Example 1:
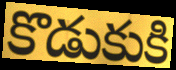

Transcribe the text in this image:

కొడుకుకి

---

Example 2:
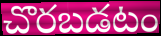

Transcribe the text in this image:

చొరబడటం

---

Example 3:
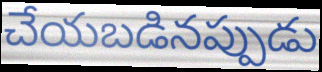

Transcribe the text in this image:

చేయబడినప్పుడు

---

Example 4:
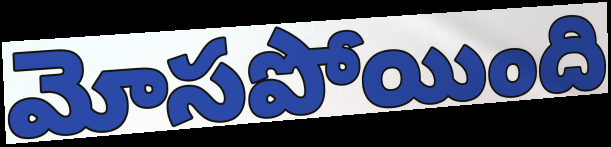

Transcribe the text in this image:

మోసపోయింది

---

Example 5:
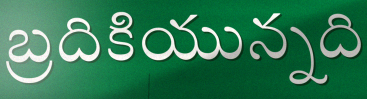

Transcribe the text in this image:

బ్రదికియున్నది